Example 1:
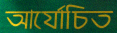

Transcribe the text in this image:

আর্যোচিত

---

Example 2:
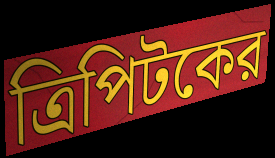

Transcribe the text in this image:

ত্রিপিটকের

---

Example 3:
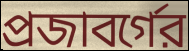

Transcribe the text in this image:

প্রজাবর্গের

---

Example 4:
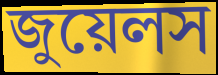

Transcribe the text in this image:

জুয়েলস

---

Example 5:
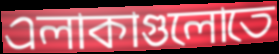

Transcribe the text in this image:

এলাকাগুলোতে